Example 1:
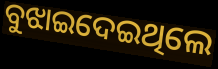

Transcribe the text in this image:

ବୁଝାଇଦେଇଥିଲେ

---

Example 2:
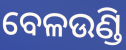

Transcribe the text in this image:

ବେଳଉଣ୍ଡି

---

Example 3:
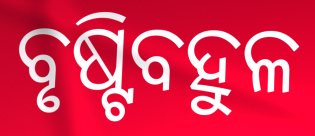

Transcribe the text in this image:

ବୃଷ୍ଟିବହୁଳ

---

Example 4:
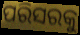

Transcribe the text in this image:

ପରିସରକୁ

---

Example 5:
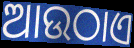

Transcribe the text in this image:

ଆଉଠାଏ